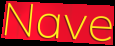
Nave